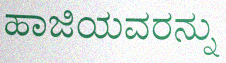
ಹಾಜಿಯವರನ್ನು